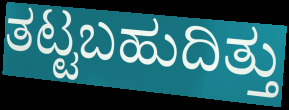
ತಟ್ಟಬಹುದಿತ್ತು